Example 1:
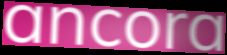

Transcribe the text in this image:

ancora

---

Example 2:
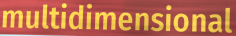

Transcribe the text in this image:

multidimensional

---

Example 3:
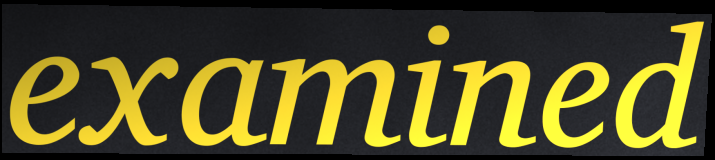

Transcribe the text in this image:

examined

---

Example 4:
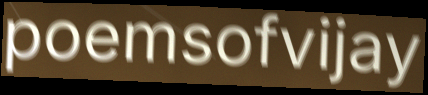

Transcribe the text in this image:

poemsofvijay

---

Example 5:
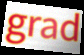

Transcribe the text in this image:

grad